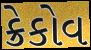
ક્રેકોવ